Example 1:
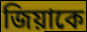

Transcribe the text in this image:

জিয়াকে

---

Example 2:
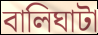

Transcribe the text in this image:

বালিঘাটা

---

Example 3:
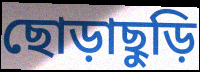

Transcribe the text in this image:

ছোড়াছুড়ি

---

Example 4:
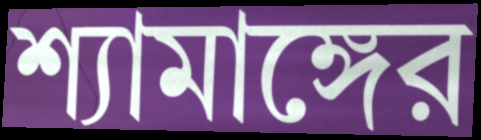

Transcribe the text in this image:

শ্যামাঙ্গের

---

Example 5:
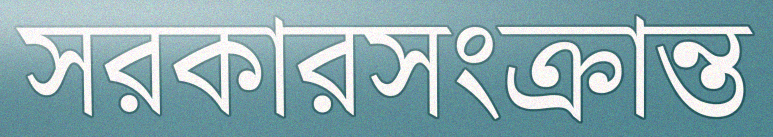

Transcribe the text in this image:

সরকারসংক্রান্ত